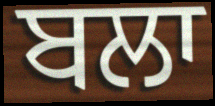
ਬਲਾ